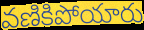
వణికిపోయారు